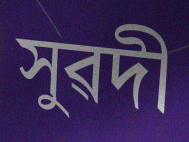
সুৱদী